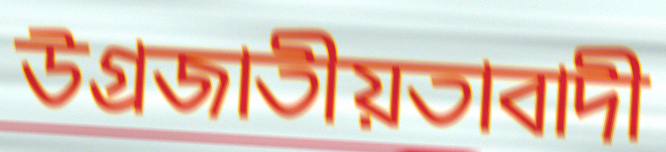
উগ্রজাতীয়তাবাদী